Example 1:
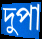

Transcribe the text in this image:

দুপা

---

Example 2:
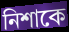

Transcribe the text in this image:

নিশাকে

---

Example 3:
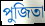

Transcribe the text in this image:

পুজিতা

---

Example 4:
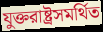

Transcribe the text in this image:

যুক্তরাষ্ট্রসমর্থিত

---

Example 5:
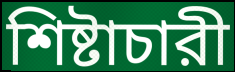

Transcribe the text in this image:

শিষ্টাচারী